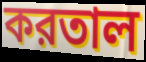
করতাল